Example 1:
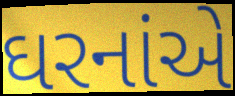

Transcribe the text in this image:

ઘરનાંએ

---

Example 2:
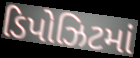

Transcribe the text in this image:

ડિપોઝિટમાં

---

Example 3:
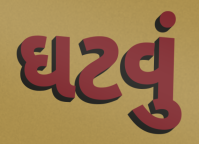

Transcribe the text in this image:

ઘટવું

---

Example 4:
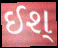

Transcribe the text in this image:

ઈશ્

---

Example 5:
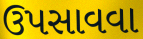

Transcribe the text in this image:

ઉપસાવવા